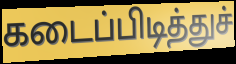
கடைப்பிடித்துச்